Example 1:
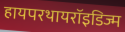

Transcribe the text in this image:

हायपरथायरॉइडिज्म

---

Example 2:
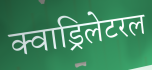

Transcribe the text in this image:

क्वाड्रिलेटरल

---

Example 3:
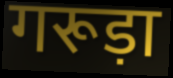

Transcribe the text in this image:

गरूड़ा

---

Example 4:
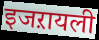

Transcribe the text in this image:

इजऱायली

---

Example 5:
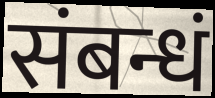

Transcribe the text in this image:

संबन्धं